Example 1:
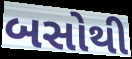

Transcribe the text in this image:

બસોથી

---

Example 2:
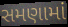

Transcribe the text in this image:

સમણામાં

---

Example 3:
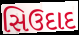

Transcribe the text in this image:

સિઉદાદ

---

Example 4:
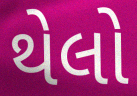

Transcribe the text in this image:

થેલો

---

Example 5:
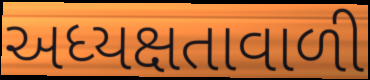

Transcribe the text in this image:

અધ્યક્ષતાવાળી